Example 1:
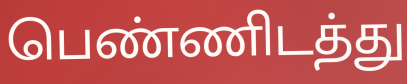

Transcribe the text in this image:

பெண்ணிடத்து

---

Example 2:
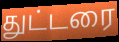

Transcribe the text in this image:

துட்டரை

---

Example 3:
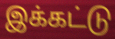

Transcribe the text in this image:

இக்கட்டு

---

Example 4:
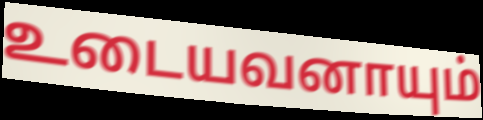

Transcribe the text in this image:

உடையவனாயும்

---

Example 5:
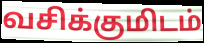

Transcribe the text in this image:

வசிக்குமிடம்